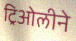
ट्रिओलीने